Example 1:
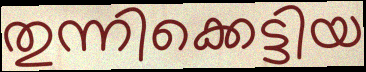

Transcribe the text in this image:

തുന്നിക്കെട്ടിയ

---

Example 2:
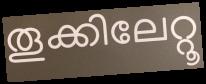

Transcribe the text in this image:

തൂക്കിലേറ്റൂ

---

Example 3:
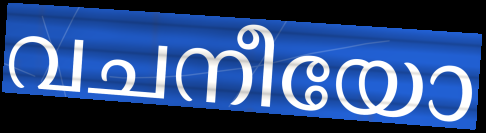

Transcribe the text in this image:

വചനീയോ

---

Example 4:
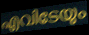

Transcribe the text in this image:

എവിടേയും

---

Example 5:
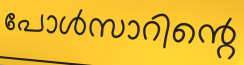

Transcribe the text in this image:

പോൾസാറിന്റെ